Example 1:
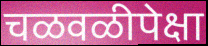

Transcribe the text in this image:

चळवळीपेक्षा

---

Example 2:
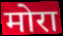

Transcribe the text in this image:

मोरा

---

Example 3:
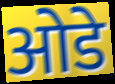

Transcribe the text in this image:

ओडे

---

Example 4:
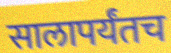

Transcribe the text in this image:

सालापर्यंतच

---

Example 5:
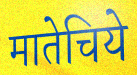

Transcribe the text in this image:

मातेचिये